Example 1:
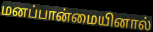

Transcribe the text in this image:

மனப்பான்மையினால்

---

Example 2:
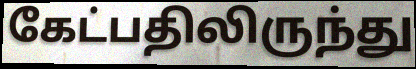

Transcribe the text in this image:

கேட்பதிலிருந்து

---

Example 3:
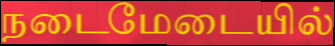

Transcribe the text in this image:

நடைமேடையில்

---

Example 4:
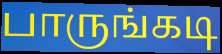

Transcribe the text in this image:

பாருங்கடி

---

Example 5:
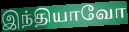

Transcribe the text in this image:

இந்தியாவோ